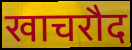
खाचरौद